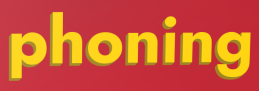
phoning